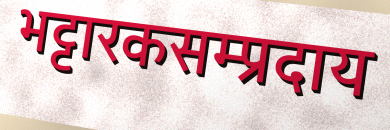
भट्टारकसम्प्रदाय